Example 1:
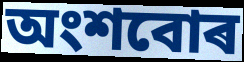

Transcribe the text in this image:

অংশবোৰ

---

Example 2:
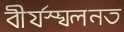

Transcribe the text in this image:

বীৰ্যস্খলনত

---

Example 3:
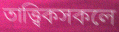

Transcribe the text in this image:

তাত্ত্বিকসকলে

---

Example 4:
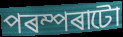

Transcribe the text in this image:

পৰম্পৰাটো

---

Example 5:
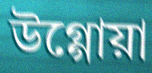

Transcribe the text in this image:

উগ্গোয়া